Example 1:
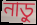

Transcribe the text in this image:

নাডু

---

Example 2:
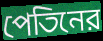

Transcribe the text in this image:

পেতিনের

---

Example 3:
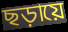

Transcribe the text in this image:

ছড়ায়ে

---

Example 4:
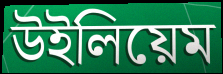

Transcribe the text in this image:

উইলিয়েম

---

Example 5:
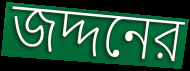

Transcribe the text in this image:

জদ্দনের